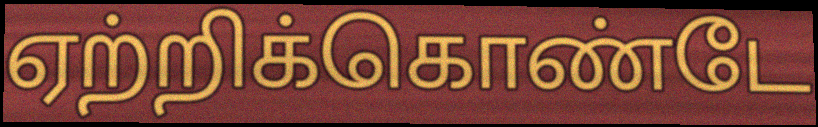
ஏற்றிக்கொண்டே